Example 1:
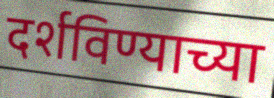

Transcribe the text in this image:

दर्शविण्याच्या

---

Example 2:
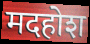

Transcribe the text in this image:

मदहोश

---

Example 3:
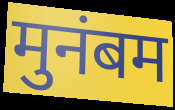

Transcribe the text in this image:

मुनंबम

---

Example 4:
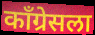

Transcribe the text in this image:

काँग्रेसला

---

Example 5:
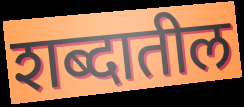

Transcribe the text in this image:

शब्दातील